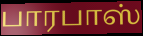
பாரபாஸ்